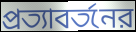
প্রত্যাবর্তনের